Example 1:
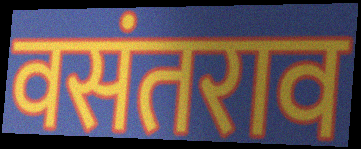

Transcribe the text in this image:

वसंतराव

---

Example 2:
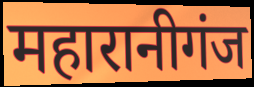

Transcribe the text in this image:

महारानीगंज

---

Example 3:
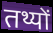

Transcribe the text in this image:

तथ्यों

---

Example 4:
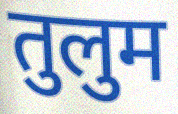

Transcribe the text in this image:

तुलुम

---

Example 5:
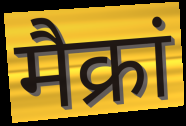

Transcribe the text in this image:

मैक्रां